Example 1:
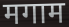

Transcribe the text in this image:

मगाम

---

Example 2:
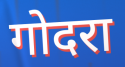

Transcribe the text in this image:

गोदरा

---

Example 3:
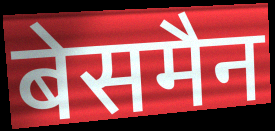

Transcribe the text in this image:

बेसमैन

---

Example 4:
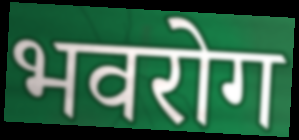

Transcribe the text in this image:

भवरोग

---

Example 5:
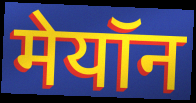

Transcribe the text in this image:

मेयॉन